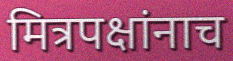
मित्रपक्षांनाच